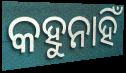
କହୁନାହିଁ